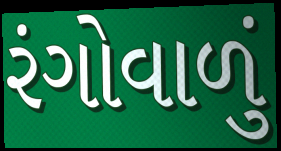
રંગોવાળું